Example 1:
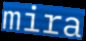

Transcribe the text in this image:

mira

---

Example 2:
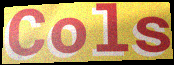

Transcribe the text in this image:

Cols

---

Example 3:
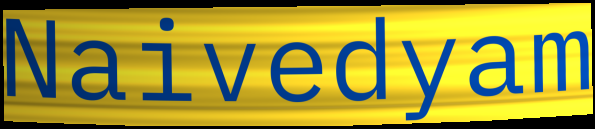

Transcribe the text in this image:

Naivedyam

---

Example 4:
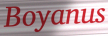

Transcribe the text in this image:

Boyanus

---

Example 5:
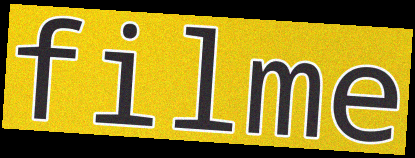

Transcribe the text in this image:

filme